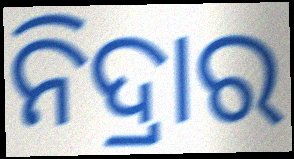
ନିଦ୍ରାର